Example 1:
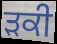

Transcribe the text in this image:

ੜਕੀ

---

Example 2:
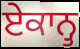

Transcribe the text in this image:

ਏਕਾਨ੍ਤ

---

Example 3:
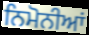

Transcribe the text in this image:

ਨਿਮੋਨੀਆਂ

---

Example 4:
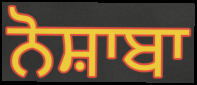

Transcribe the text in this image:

ਨੋਸ਼ਾਬਾ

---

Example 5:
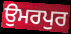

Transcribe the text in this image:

ਉਮਰਪੁਰ